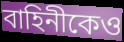
বাহিনীকেও